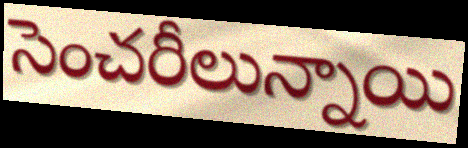
సెంచరీలున్నాయి